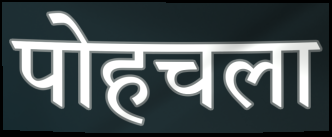
पोहचला